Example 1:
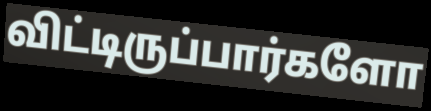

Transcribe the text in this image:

விட்டிருப்பார்களோ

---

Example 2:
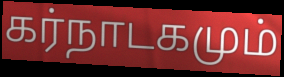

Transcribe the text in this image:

கர்நாடகமும்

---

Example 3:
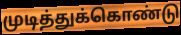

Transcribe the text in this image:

முடித்துக்கொண்டு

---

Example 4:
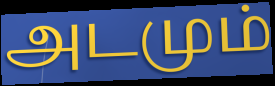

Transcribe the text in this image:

அடமும்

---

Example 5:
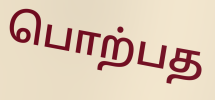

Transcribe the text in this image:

பொற்பத